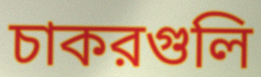
চাকরগুলি